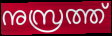
നുസ്രത്ത്